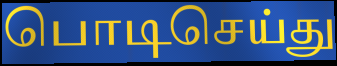
பொடிசெய்து